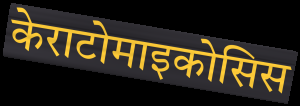
केराटोमाइकोसिस